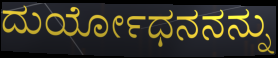
ದುರ್ಯೋಧನನನ್ನು